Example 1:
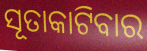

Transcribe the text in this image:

ସୂତାକାଟିବାର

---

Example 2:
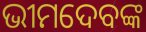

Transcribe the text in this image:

ଭୀମଦେବଙ୍କ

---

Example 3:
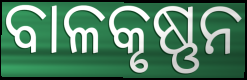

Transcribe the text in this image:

ବାଳକୃଷ୍ଣନ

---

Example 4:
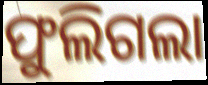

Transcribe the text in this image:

ଫୁଲିଗଲା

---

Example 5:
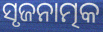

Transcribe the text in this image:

ସୃଜନାତ୍ମକ